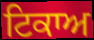
ਟਿਕਾਅ